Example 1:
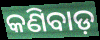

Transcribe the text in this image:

କଣିବାଡ଼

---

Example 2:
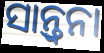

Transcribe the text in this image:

ସାନ୍ତ୍ଵନା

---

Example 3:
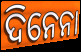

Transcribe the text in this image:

ଦିନେନା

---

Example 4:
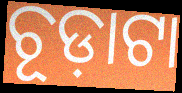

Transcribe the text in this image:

ଚୂଡ଼ାଟା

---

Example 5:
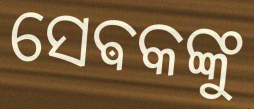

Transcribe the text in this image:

ସେଵକଙ୍କୁ